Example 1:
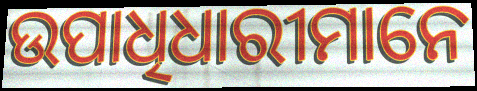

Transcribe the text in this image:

ଉପାଧିଧାରୀମାନେ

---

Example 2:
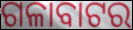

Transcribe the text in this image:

ଗଳାବାଟର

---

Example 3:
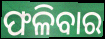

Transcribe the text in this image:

ଫଳିବାର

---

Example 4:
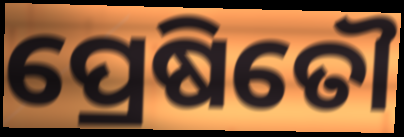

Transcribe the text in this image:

ପ୍ରେଷିତୌ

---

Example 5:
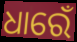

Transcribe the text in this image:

ଧାରେଁ